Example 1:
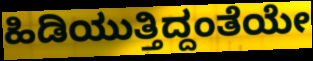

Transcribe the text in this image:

ಹಿಡಿಯುತ್ತಿದ್ದಂತೆಯೇ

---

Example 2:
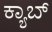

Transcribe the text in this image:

ಕ್ಯಾಬ್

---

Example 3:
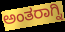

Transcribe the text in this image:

ಅಂತರಾಗ್ನಿ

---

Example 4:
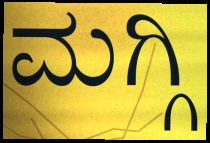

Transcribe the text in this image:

ಮಗ್ಗಿ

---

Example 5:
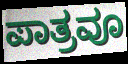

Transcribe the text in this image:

ಪಾತ್ರವೂ